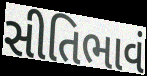
સીતિભાવં